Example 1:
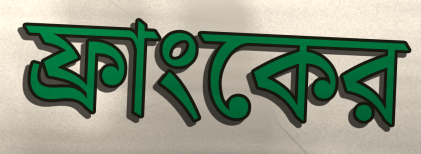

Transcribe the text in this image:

ফ্রাংকের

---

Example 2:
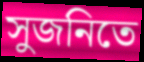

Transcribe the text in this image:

সুজনিতে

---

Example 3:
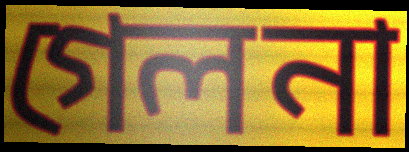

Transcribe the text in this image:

গেলনা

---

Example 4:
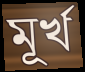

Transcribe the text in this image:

মূর্খ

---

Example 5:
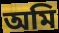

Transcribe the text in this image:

অমি